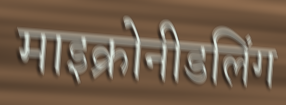
माइक्रोनीडलिंग